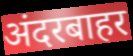
अंदरबाहर